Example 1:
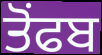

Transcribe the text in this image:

ਤੋਂਫਬ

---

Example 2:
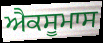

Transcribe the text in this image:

ਐਕਸੂਮਾਸ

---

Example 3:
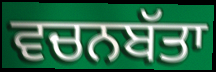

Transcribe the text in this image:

ਵਚਨਬੱਤਾ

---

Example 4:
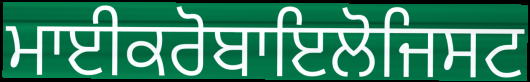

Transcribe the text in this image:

ਮਾਈਕਰੋਬਾਇਲੋਜਿਸਟ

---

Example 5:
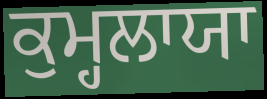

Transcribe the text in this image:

ਕੁਮ੍ਹਲਾਯਾ